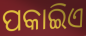
ପକାଇିଏ